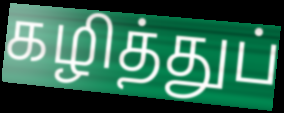
கழித்துப்